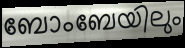
ബോംബേയിലും